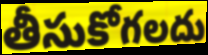
తీసుకోగలదు